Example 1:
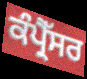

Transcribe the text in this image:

ਕੰਪ੍ਰੈੱਸਰ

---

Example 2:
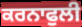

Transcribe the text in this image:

ਕਰਨਾਫੁਲੀ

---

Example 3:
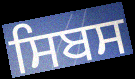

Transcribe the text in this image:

ਸਿਬਸ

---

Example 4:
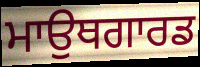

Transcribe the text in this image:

ਮਾਉਥਗਾਰਡ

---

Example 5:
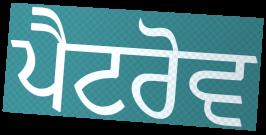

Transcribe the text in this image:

ਪੈਟਰੋਵ